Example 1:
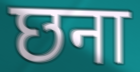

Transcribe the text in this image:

छना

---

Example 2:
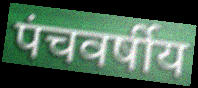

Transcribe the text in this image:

पंचवर्षीय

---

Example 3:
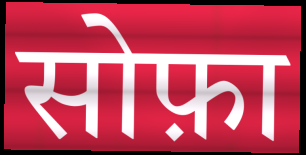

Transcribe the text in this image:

सोफ़ा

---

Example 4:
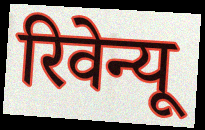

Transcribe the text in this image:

रिवेन्यू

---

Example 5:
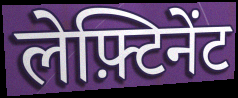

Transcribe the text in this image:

लेफ़्टिनेंट